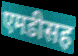
एमडीसह